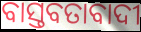
ବାସ୍ତବତାବାଦୀ